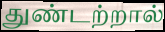
துண்டற்றால்